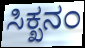
ಸಿಕ್ಖನಂ